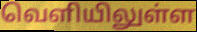
வெளியிலுள்ள